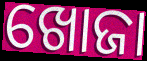
ଖୋଜା